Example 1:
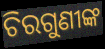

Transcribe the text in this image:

ଚିରଗୁଣୀଙ୍କ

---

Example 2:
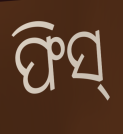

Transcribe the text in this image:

ଫିସ୍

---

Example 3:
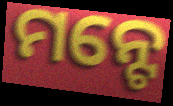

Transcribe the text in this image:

ମନ୍ଟେ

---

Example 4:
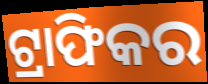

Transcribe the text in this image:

ଟ୍ରାଫିକର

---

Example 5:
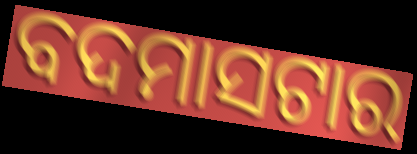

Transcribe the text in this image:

ବଦମାସଟାର